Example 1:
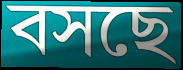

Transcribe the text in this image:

বসছে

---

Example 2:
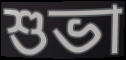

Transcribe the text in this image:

শুভা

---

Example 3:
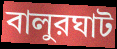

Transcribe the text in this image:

বালুরঘাট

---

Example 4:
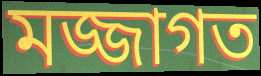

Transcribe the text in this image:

মজ্জাগত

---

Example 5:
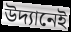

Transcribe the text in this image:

উদ্যানেই